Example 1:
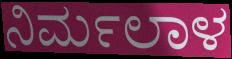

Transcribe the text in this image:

ನಿರ್ಮಲಾಳ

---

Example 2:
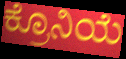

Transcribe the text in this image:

ಕ್ರೊನಿಯೆ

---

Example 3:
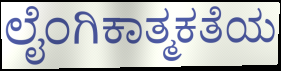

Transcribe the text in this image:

ಲೈಂಗಿಕಾತ್ಮಕತೆಯ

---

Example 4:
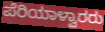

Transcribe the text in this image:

ಪೆರಿಯಾಳ್ವಾರರು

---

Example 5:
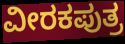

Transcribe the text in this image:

ವೀರಕಪುತ್ರ